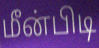
மீன்பிடி